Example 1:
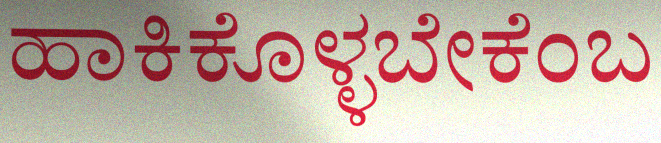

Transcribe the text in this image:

ಹಾಕಿಕೊಳ್ಳಬೇಕೆಂಬ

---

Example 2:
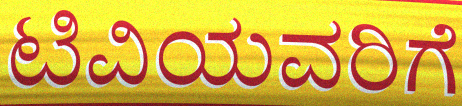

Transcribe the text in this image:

ಟಿವಿಯವರಿಗೆ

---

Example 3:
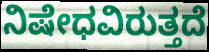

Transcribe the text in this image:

ನಿಷೇಧವಿರುತ್ತದೆ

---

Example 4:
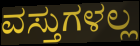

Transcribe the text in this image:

ವಸ್ತುಗಳಲ್ಲ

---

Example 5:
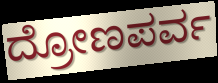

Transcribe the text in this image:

ದ್ರೋಣಪರ್ವ